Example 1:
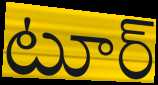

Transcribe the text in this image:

టూర్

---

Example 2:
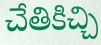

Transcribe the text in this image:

చేతికిచ్చి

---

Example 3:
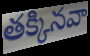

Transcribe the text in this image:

తక్కినవా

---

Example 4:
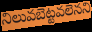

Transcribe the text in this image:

నిలువబెట్టవలెనని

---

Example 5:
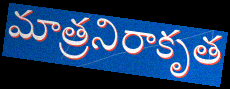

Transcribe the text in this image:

మాత్రనిరాకృత